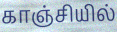
காஞ்சியில்